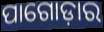
ପାଗୋଡ଼ାର